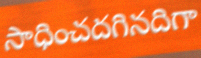
సాధించదగినదిగా